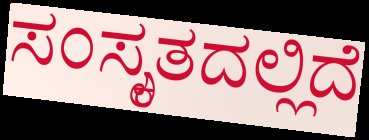
ಸಂಸ್ಕೃತದಲ್ಲಿದೆ